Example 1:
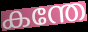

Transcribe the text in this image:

കന്തേ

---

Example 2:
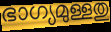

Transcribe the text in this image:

ഭാഗ്യമുള്ളതു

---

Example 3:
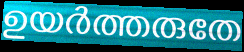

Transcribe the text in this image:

ഉയർത്തരുതേ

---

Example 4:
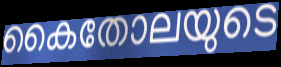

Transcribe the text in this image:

കൈതോലയുടെ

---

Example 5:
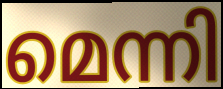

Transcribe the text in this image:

മെന്നി